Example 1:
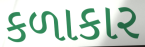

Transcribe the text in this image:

કળાકાર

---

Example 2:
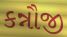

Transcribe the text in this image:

કન્નૌજી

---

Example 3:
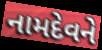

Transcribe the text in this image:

નામદેવને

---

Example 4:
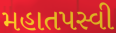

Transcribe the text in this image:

મહાતપસ્વી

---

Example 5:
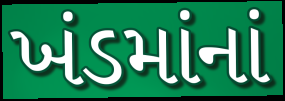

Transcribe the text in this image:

ખંડમાંનાં